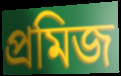
প্রমিজ